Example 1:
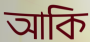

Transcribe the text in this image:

আকি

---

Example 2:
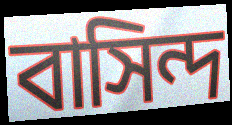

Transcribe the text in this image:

বাসিন্দ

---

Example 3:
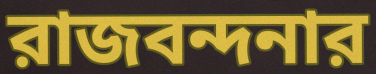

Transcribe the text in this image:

রাজবন্দনার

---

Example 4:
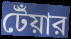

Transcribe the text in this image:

টেঁয়ার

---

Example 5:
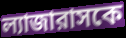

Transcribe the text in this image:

ল্যাজারাসকে